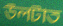
উলটাত